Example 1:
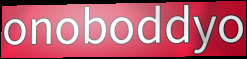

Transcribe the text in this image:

onoboddyo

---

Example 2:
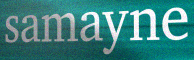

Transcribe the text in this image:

samayne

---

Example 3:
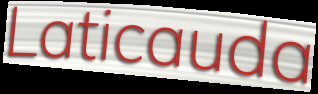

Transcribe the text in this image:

Laticauda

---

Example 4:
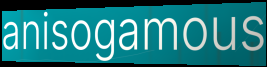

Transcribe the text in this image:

anisogamous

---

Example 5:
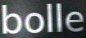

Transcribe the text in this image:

bolle